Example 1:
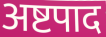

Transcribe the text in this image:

अष्टपाद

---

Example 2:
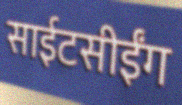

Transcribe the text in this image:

साईटसीईंग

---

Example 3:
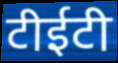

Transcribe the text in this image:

टीईटी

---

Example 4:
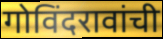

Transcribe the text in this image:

गोविंदरावांची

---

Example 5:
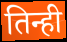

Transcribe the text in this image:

तिन्ही